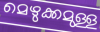
മെഴുക്കമുള്ള